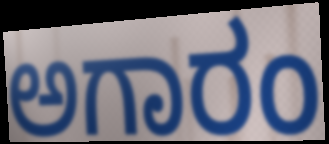
ಅಗಾರಂ